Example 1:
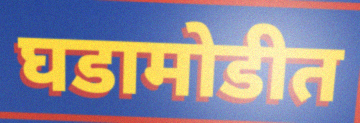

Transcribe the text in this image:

घडामोडीत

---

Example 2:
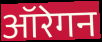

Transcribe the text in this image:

ऑरेगन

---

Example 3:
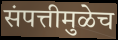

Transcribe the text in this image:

संपत्तीमुळेच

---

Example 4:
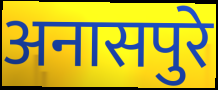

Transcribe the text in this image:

अनासपुरे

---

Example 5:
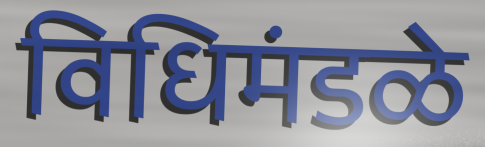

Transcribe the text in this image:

विधिमंडळे